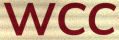
WCC